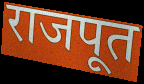
राजपूत